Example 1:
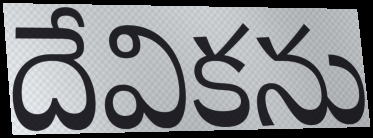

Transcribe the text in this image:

దేవికను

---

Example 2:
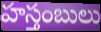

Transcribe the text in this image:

హస్తంబులు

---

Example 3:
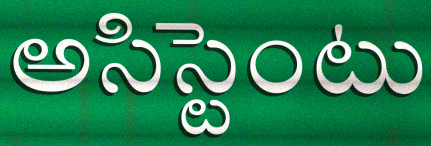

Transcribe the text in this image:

అసిస్టెంటు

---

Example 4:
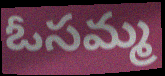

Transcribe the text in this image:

ఓసమ్మ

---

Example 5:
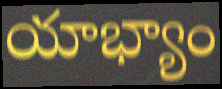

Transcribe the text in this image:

యాభ్యాం